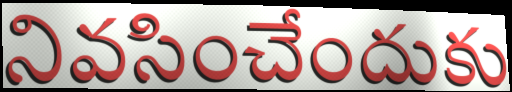
నివసించేందుకు